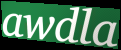
awdla